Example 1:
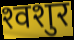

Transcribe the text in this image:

श्वशुर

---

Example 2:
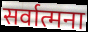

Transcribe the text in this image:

सर्वात्मना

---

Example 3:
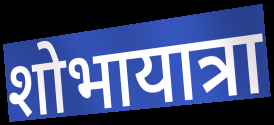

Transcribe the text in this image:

शोभायात्रा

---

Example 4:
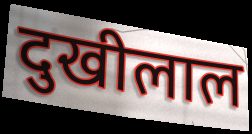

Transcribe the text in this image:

दुखीलाल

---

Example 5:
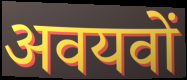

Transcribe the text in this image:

अवयवों